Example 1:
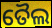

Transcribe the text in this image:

ତୈଲ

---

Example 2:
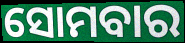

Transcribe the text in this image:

ସୋମବାର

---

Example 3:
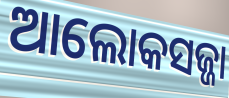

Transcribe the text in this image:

ଆଲୋକସଜ୍ଜା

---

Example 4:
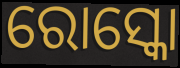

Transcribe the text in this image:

ରୋସ୍କୋ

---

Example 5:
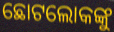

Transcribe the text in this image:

ଛୋଟଲୋକଙ୍କୁ